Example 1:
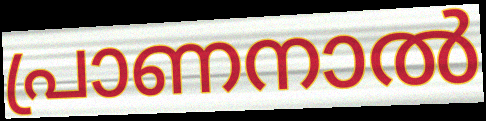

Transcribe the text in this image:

പ്രാണനാൽ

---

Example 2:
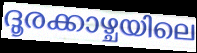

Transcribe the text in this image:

ദൂരക്കാഴ്ചയിലെ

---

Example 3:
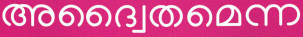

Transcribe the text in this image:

അദ്വൈതമെന്ന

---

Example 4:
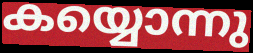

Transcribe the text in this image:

കയ്യൊന്നു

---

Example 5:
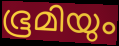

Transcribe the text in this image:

ഭൂമിയും